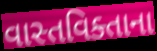
વાસ્તવિક્તાના